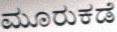
ಮೂರುಕಡೆ